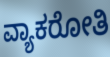
ವ್ಯಾಕರೋತಿ